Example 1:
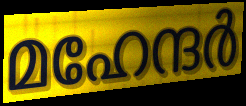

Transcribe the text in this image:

മഹേന്ദർ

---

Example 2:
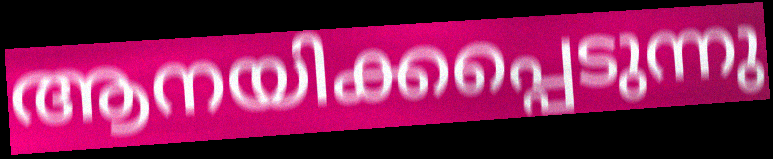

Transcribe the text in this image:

ആനയിക്കപ്പെടുന്നു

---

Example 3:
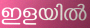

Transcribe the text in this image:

ഇളയിൽ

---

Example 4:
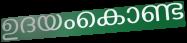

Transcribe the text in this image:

ഉദയംകൊണ്ട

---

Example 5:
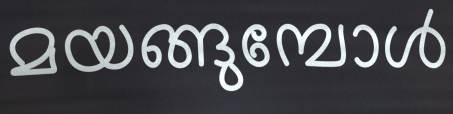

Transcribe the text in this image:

മയങ്ങുമ്പോൾ